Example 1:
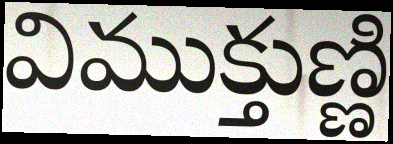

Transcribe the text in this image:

విముక్తుణ్ణి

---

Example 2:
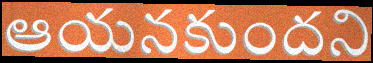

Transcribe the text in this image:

ఆయనకుందని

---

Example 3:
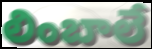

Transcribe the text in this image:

లింబాలే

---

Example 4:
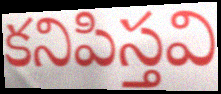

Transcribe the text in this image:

కనిపిస్తవి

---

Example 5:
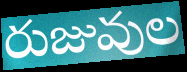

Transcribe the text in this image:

రుజువుల